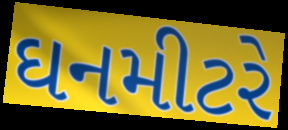
ઘનમીટરે